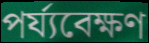
পৰ্য্যবেক্ষণ